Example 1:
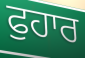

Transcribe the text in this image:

ਫੁਹਾਰ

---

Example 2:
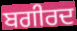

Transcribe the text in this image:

ਬਗੀਰਦ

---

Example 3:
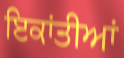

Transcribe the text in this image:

ਇਕਾਂਤੀਆਂ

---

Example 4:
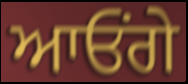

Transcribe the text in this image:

ਆਓਂਗੇ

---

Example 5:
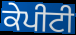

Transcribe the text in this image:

ਕੇਪੀਟੀ